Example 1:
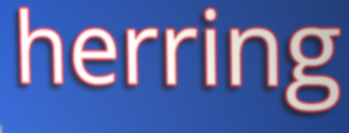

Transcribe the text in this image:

herring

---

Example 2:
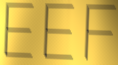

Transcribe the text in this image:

EEF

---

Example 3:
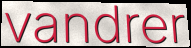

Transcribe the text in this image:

vandrer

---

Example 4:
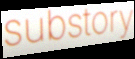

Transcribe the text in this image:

substory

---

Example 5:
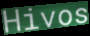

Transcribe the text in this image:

Hivos